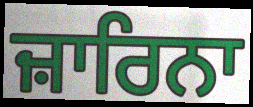
ਜ਼ਾਰਿਨਾ